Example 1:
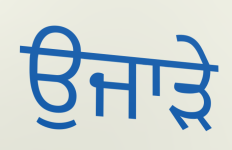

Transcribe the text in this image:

ਉਜਾੜੇ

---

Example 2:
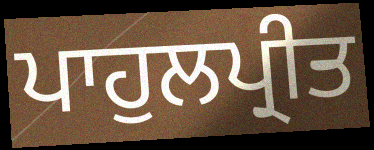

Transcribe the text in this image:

ਪਾਹੁਲਪ੍ਰੀਤ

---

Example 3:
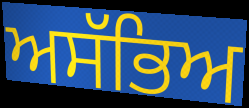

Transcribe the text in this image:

ਅਸੱਭਿਅ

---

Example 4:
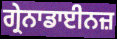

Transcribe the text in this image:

ਗ੍ਰੇਨਾਡਾਈਨਜ਼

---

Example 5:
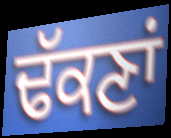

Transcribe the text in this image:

ਢੱਕਣਾਂ